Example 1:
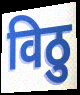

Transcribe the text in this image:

विठु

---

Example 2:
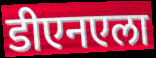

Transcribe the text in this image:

डीएनएला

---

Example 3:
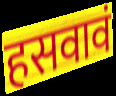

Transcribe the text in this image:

हसवावं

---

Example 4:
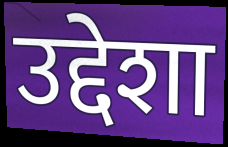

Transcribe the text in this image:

उद्देशा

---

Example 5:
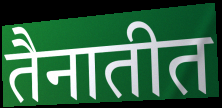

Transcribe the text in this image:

तैनातीत